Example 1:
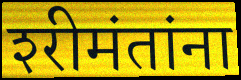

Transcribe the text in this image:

श्रीमंतांना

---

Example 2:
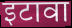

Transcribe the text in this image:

इटावा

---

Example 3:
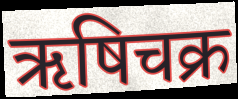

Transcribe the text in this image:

ऋषिचक्र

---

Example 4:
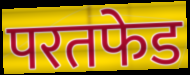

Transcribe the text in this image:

परतफेड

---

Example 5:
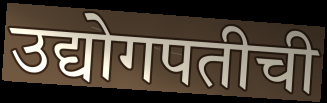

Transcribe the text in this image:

उद्योगपतीची